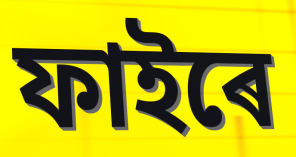
ফাইৰে